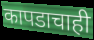
कापडाचाही